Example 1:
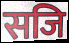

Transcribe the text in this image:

सजि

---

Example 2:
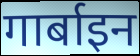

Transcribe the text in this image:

गार्बाइन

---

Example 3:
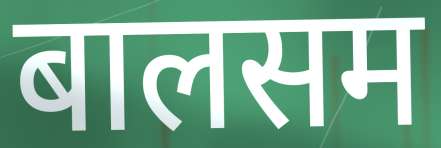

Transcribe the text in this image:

बालसम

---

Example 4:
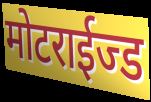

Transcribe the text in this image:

मोटराईज्ड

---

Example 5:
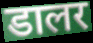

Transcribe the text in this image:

डालर